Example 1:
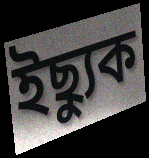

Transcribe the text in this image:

ইছ্যুক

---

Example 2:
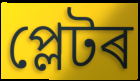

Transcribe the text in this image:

প্লেটৰ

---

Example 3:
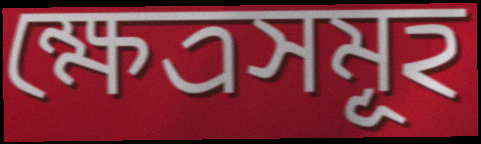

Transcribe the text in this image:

ক্ষেত্ৰসমূহ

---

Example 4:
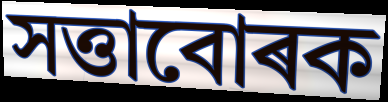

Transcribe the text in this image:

সত্তাবোৰক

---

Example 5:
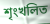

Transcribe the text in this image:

শৃংখলিত